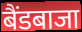
बैंडबाजा